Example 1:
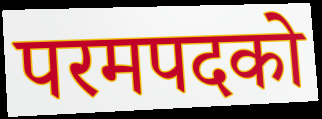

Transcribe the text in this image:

परमपदको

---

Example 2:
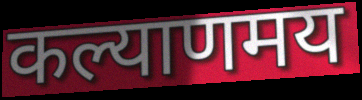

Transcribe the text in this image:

कल्याणमय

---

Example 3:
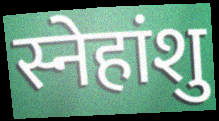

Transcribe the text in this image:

स्नेहांशु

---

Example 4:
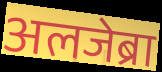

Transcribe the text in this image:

अलजेब्रा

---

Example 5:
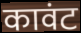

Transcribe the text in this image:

कावंट